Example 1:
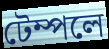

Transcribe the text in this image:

টেম্পলে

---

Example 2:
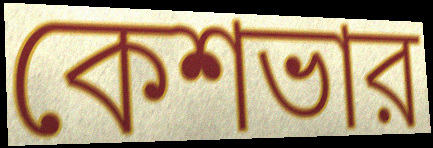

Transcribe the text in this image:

কেশভার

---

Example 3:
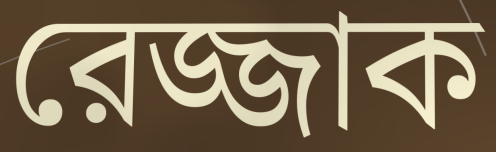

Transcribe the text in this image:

রেজ্জাক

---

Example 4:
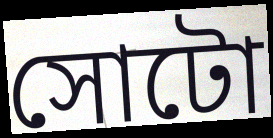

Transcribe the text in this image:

সোটো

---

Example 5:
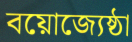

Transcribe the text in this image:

বয়োজ্যেষ্ঠা